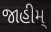
જાહીમ્